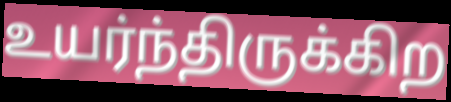
உயர்ந்திருக்கிற